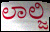
ಲಾಲ್ಜಿ